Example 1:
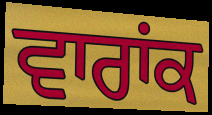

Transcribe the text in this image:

ਵਾਰਾਂਕ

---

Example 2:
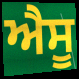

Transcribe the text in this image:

ਐਸੂ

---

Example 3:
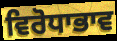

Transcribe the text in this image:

ਵਿਰੋਧਾਭਾਵ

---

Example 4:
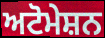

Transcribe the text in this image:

ਅਟੋਮੇਸ਼ਨ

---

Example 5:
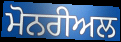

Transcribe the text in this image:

ਮੋਨਰੀਅਲ